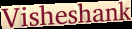
Visheshank